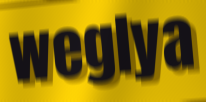
weglya